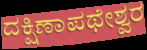
ದಕ್ಷಿಣಾಪಥೇಶ್ವರ